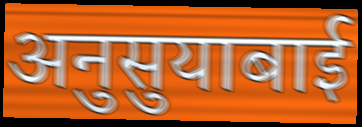
अनुसुयाबाई